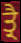
ਤ੍ਰੈ